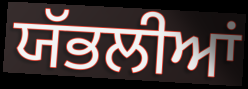
ਯੱਭਲੀਆਂ